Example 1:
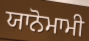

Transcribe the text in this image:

ਯਾਨੋਮਾਮੀ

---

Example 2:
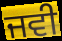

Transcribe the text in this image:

ਜਵੀ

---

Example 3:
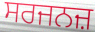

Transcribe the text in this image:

ਸਰਜਨਜ਼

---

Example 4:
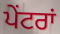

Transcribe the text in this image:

ਪੇਂਟਰਾਂ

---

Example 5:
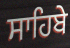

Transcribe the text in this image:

ਸਾਹਿਬੇ